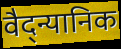
वैद्न्यानिक